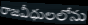
రాజవీధులలోను